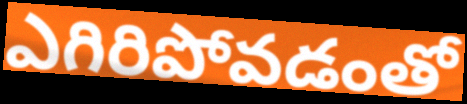
ఎగిరిపోవడంతో